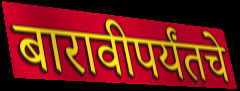
बारावीपर्यंतचे